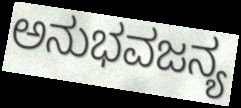
ಅನುಭವಜನ್ಯ